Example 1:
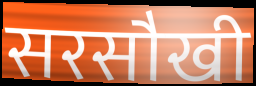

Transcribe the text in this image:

सरसौखी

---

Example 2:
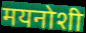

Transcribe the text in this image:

मयनोशी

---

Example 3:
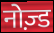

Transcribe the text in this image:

नोज़्ड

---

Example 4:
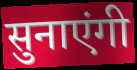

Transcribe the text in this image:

सुनाएंगी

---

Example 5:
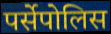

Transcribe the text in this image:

पर्सेपोलिस